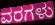
ವರಗಳು